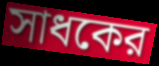
সাধকের